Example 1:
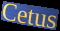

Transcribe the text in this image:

Cetus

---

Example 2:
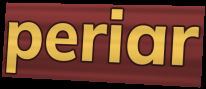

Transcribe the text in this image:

periar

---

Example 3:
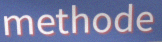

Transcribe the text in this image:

methode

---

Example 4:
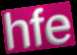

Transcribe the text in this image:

hfe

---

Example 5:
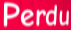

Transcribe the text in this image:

Perdu